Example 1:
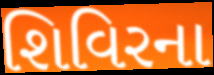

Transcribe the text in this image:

શિવિરના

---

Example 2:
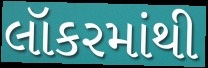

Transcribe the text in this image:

લૉકરમાંથી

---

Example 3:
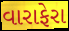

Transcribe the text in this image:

વારાફેરા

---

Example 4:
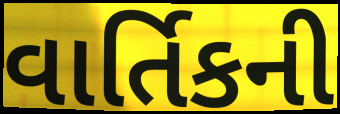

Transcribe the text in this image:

વાર્તિકની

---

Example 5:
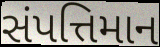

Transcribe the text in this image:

સંપત્તિમાન